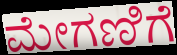
ಮೇಗಣಿಗೆ